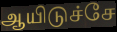
ஆயிடுச்சே